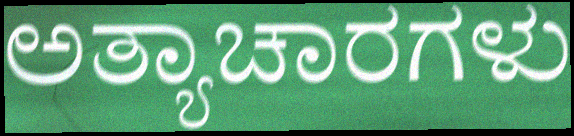
ಅತ್ಯಾಚಾರಗಳು